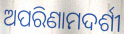
ଅପରିଣାମଦର୍ଶୀ